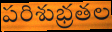
పరిశుభ్రతల